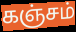
கஞ்சம்